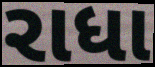
રાધા